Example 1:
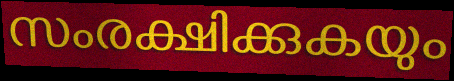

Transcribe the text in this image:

സംരക്ഷിക്കുകയും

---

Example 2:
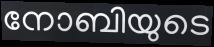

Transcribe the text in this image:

നോബിയുടെ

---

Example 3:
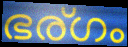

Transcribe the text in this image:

ഭര്ഗം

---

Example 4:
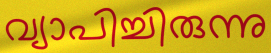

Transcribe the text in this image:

വ്യാപിച്ചിരുന്നു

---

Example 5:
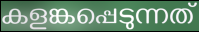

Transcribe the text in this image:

കളങ്കപ്പെടുന്നത്